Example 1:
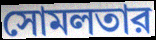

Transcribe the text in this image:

সোমলতার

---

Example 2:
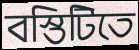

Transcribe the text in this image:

বস্তিটিতে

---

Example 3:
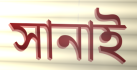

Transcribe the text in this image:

সানাই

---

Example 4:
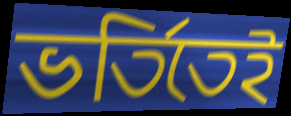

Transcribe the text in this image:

ভর্তিতেই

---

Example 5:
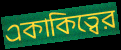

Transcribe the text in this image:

একাকিত্বের